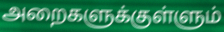
அறைகளுக்குள்ளும்